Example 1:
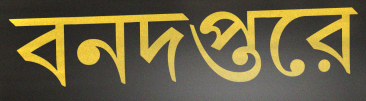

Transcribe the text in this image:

বনদপ্তরে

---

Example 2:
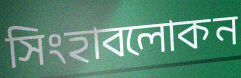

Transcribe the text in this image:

সিংহাবলোকন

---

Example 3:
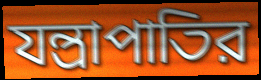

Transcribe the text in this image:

যন্ত্রাপাতির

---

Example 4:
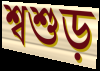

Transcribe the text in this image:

শ্বশুড়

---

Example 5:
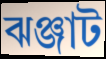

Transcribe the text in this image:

ঝঞ্জাট